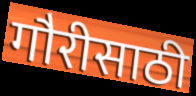
गौरीसाठी